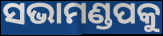
ସଭାମଣ୍ଡପକୁ